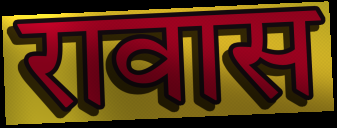
रावास